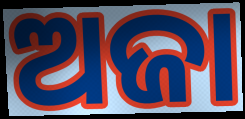
ଅଜା